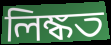
লিঙ্কত